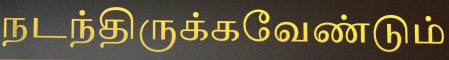
நடந்திருக்கவேண்டும்